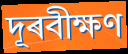
দূৰবীক্ষণ